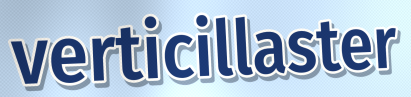
verticillaster